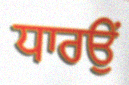
ਧਾਰਉਂ